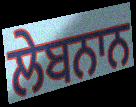
ਲੇਬਨਾਨ